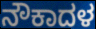
ನೌಕಾದಳ